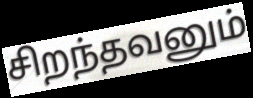
சிறந்தவனும்